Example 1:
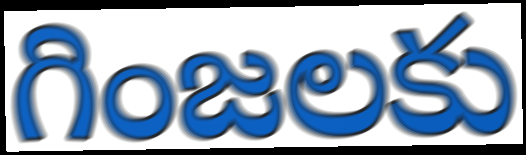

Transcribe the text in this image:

గింజలకు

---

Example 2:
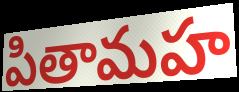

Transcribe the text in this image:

పితామహ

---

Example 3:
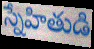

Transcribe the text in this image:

స్నేహితుడి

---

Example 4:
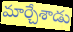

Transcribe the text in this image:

మార్చేశాడు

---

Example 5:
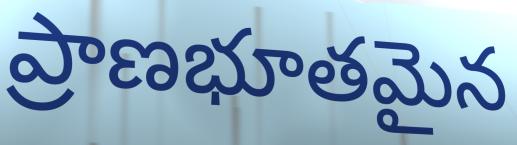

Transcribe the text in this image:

ప్రాణభూతమైన